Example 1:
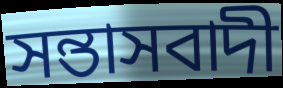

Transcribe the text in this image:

সন্তাসবাদী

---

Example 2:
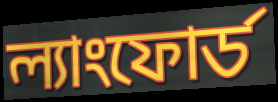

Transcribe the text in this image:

ল্যাংফোর্ড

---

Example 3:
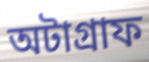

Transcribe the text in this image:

অটাগ্রাফ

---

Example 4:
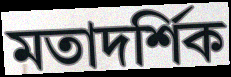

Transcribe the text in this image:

মতাদর্শিক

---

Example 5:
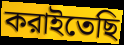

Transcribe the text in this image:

করাইতেছি